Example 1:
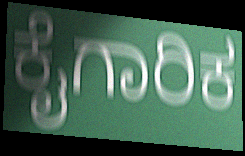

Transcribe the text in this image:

ಕೈಗಾರಿಕ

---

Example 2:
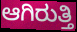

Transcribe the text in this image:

ಆಗಿರುತ್ತಿ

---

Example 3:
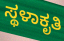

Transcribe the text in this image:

ಸ್ಥಳಾಕೃತಿ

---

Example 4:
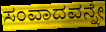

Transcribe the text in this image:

ಸಂವಾದವನ್ನೇ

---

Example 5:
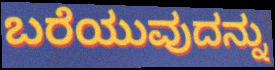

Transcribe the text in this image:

ಬರೆಯುವುದನ್ನು